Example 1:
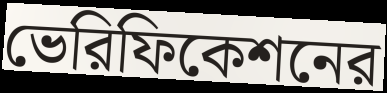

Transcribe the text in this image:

ভেরিফিকেশনের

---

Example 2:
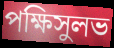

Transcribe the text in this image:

পক্ষিসুলভ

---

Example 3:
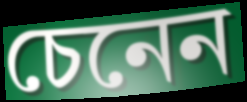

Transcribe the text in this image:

চেনেন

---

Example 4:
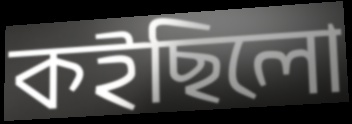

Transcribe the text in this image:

কইছিলো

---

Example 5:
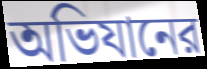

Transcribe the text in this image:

অভিযানের